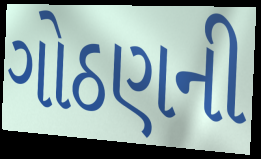
ગોઠણની